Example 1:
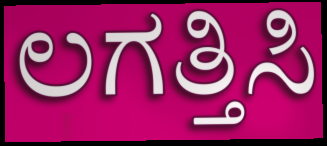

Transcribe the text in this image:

ಲಗತ್ತಿಸಿ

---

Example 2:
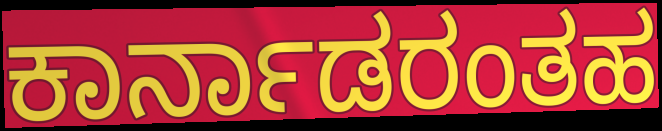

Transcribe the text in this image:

ಕಾರ್ನಾಡರಂತಹ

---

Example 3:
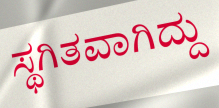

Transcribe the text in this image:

ಸ್ಥಗಿತವಾಗಿದ್ದು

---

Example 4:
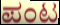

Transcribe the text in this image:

ಪಂಟ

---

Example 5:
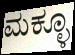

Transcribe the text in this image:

ಮಕ್ಳೂ